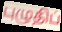
புழுதிப்